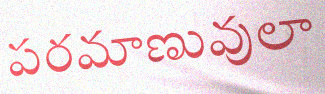
పరమాణువులా